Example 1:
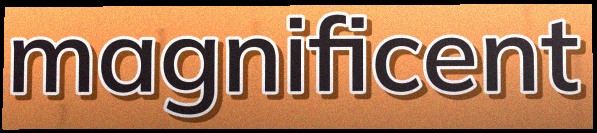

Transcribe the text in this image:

magnificent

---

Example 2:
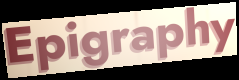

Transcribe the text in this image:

Epigraphy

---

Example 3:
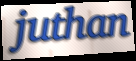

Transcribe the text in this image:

juthan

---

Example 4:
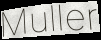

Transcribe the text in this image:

Muller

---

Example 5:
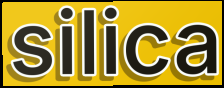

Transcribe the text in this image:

silica